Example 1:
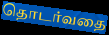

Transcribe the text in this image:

தொடர்வதை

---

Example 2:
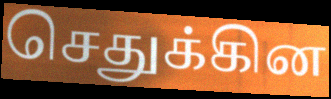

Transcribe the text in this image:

செதுக்கின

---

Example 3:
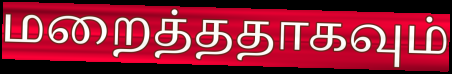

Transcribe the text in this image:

மறைத்ததாகவும்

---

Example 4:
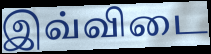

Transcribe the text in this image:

இவ்விடை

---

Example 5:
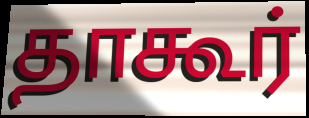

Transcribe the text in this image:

தாகூர்